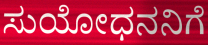
ಸುಯೋಧನನಿಗೆ